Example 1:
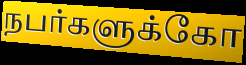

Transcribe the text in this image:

நபர்களுக்கோ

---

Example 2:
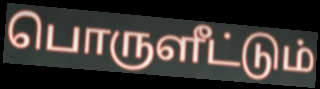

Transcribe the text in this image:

பொருளீட்டும்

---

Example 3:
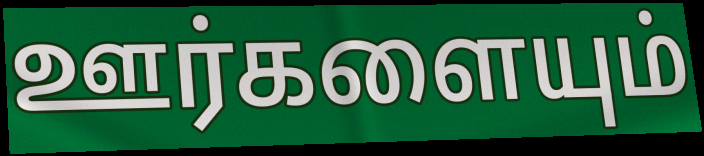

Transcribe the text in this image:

ஊர்களையும்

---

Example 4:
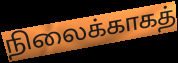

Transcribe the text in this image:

நிலைக்காகத்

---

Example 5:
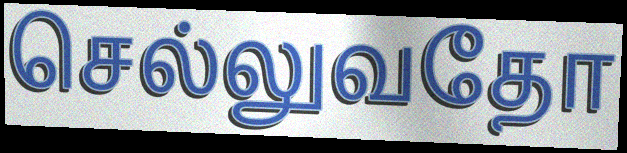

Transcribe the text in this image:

செல்லுவதோ